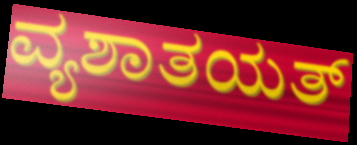
ವ್ಯಶಾತಯತ್